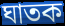
ঘাতক